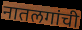
नातलगांची